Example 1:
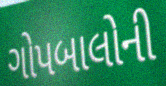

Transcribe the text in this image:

ગોપબાલોની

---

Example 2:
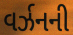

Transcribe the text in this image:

વર્ઝનની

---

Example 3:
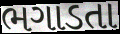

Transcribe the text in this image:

ભગાડતા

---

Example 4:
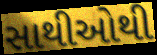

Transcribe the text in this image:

સાથીઓથી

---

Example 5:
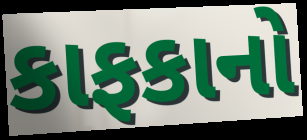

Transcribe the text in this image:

કાફકાનો